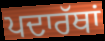
ਪਦਾਰੱਥਾਂ